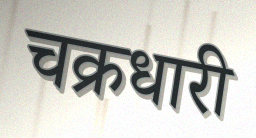
चक्रधारी